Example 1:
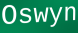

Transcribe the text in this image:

Oswyn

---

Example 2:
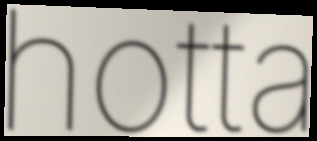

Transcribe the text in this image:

hotta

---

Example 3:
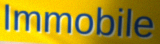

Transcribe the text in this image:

Immobile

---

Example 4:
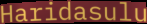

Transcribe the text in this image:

Haridasulu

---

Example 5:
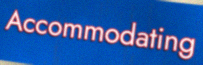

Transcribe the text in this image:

Accommodating